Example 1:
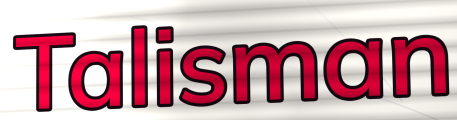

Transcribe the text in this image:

Talisman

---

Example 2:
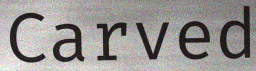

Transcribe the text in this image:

Carved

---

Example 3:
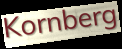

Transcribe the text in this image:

Kornberg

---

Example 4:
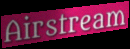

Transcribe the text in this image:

Airstream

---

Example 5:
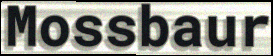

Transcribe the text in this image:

Mossbaur